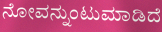
ನೋವನ್ನುಂಟುಮಾಡಿದೆ